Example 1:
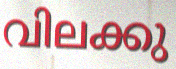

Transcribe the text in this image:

വിലക്കു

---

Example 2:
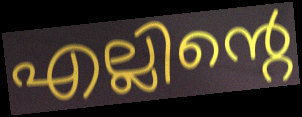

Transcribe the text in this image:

എല്ലിന്റെ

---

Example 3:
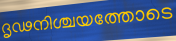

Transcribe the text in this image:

ദൃഢനിശ്ചയത്തോടെ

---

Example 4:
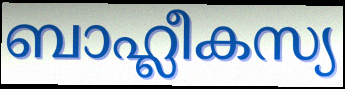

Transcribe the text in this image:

ബാഹ്ലീകസ്യ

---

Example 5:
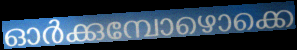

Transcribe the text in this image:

ഓർക്കുമ്പോഴൊക്കെ